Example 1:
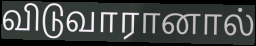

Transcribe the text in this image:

விடுவாரானால்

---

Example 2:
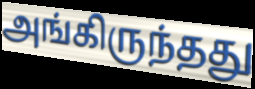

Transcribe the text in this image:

அங்கிருந்தது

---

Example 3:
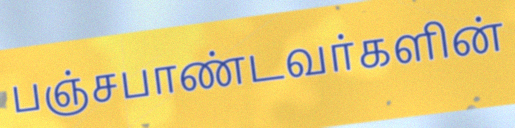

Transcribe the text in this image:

பஞ்சபாண்டவர்களின்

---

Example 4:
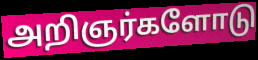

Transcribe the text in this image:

அறிஞர்களோடு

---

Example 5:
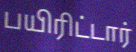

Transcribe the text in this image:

பயிரிட்டார்